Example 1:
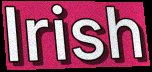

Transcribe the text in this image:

Irish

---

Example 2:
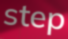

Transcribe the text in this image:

step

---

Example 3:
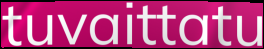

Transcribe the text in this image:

tuvaittatu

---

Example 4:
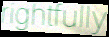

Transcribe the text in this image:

rightfully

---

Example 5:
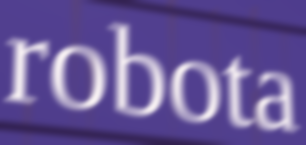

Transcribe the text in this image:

robota